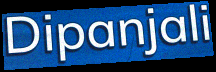
Dipanjali